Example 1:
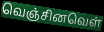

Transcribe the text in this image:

வெஞ்சினவெள்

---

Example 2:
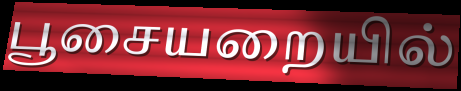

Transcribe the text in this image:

பூசையறையில்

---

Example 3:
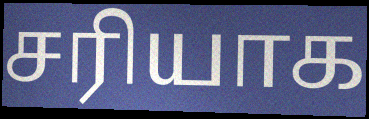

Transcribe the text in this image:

சரியாக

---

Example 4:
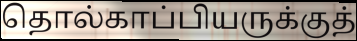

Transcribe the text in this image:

தொல்காப்பியருக்குத்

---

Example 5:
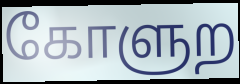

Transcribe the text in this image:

கோளுற